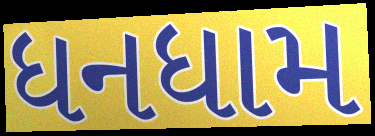
ધનધામ